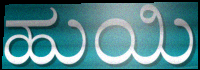
ಹುಯಿ